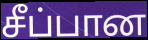
சீப்பான